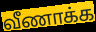
வீணாக்க